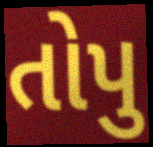
તોપુ